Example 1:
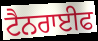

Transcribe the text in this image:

ਟੈਨਰਾਈਫ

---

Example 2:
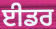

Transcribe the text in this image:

ਈਡਰ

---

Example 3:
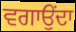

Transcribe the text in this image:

ਵਗਾਉਂਦਾ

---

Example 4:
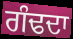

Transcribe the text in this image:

ਗੰਢਦਾ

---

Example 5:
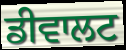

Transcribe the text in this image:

ਡੀਵਾਲਟ